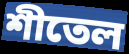
শীতেল